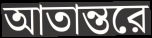
আতান্তরে